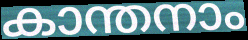
കാന്തനാം